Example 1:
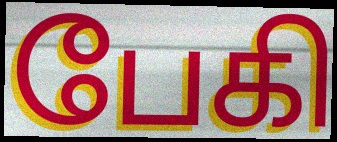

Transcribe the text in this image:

பேகி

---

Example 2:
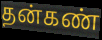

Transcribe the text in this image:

தன்கண்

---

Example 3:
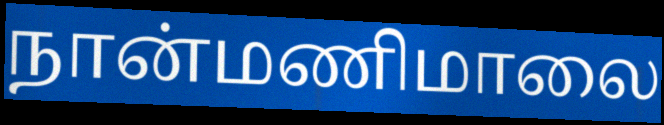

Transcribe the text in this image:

நான்மணிமாலை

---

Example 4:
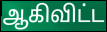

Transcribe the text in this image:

ஆகிவிட்ட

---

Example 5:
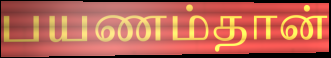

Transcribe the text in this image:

பயணம்தான்